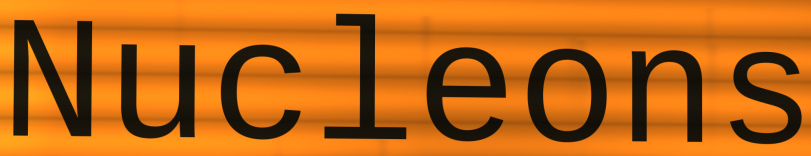
Nucleons